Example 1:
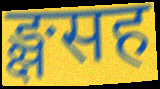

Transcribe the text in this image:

ङ्क्षसह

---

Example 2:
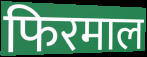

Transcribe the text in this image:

फिरमाल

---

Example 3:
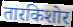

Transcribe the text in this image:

तारकिशोर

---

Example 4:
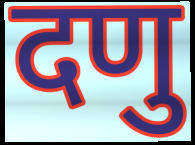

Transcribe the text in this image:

दणु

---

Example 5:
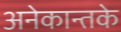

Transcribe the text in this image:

अनेकान्तके